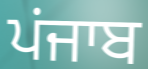
ਪਂਜਾਬ